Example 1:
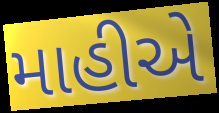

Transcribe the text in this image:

માહીએ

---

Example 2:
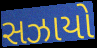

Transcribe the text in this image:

સઝાયો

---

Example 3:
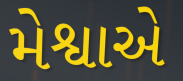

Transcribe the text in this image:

મેશ્વાએ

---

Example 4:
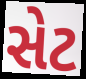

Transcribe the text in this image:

સેટ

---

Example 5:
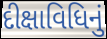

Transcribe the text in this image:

દીક્ષાવિધિનું